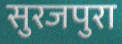
सुरजपुरा